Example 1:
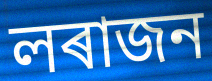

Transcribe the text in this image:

লৰাজন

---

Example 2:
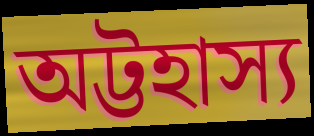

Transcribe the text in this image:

অট্টহাস্য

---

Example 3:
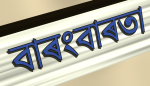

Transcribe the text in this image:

বাৰংবাৰতা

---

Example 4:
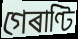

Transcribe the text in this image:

গেৰাণ্টি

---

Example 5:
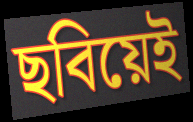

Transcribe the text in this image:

ছবিয়েই